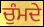
ਚੁੰਮਦੇ